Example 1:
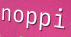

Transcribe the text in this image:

noppi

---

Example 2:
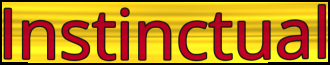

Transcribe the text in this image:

Instinctual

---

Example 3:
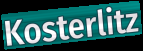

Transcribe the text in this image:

Kosterlitz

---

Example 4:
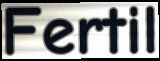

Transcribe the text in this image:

Fertil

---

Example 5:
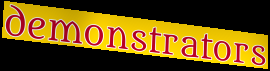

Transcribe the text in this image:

demonstrators